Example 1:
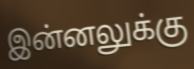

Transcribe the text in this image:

இன்னலுக்கு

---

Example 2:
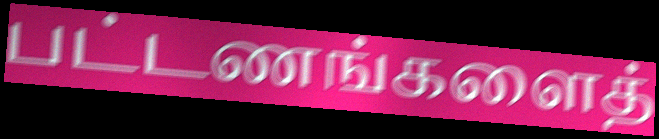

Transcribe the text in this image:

பட்டணங்களைத்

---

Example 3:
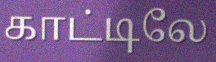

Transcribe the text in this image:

காட்டிலே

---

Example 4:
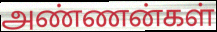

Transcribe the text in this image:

அண்ணன்கள்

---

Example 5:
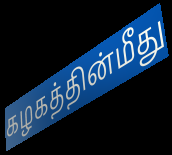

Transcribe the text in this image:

கழகத்தின்மீது